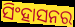
ସିଂହାସନର